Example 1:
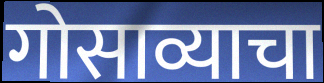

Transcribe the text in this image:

गोसाव्याचा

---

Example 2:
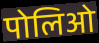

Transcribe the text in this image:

पोलिओ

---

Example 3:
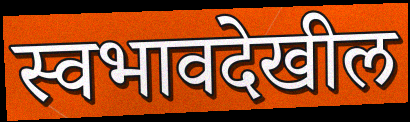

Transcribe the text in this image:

स्वभावदेखील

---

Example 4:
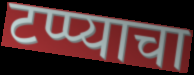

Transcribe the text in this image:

टप्प्याचा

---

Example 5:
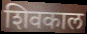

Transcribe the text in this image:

शिवकाल